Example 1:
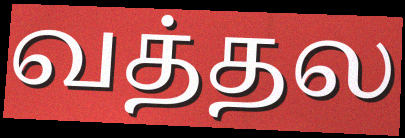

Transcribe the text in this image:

வத்தல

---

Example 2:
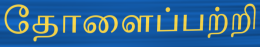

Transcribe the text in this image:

தோளைப்பற்றி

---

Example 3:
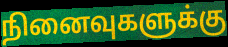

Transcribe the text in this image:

நினைவுகளுக்கு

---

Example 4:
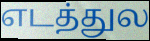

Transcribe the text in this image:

எடத்துல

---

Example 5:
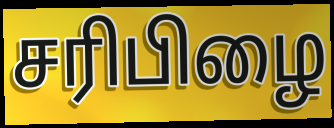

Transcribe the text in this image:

சரிபிழை